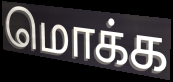
மொக்க